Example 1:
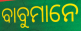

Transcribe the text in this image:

ବାବୁମାନେ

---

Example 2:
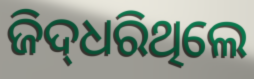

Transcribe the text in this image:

ଜିଦ୍‌ଧରିଥିଲେ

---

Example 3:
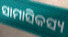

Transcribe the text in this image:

ସାମାସିକସ୍ୟ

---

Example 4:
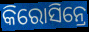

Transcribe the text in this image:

କିରୋସିନ୍ରେ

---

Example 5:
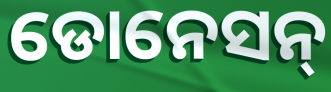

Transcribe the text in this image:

ଡୋନେସନ୍